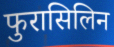
फुरासिलिन